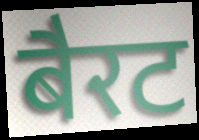
बैरट